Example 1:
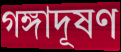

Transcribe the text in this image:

গঙ্গাদূষণ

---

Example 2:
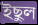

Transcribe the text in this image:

ইছুল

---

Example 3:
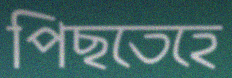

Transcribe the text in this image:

পিছতেহে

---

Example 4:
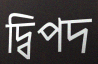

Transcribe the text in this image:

দ্বিপদ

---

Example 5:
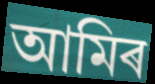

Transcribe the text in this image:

আমিৰ